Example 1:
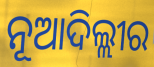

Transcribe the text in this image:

ନୂଆଦିଲ୍ଲୀର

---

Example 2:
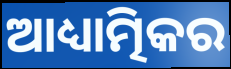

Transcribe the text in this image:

ଆଧ୍ୟାତ୍ମିକର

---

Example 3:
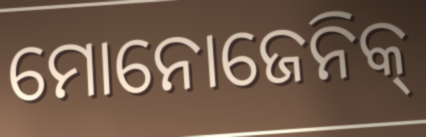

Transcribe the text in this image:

ମୋନୋଜେନିକ୍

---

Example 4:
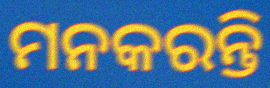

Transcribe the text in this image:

ମନକରନ୍ତି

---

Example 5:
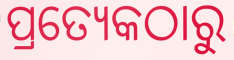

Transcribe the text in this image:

ପ୍ରତ୍ୟେକଠାରୁ